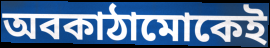
অবকাঠামোকেই